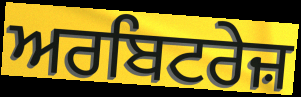
ਅਰਬਿਟਰੇਜ਼